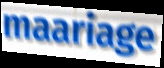
maariage